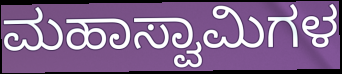
ಮಹಾಸ್ವಾಮಿಗಳ